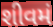
શીવમં